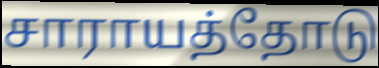
சாராயத்தோடு